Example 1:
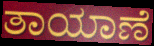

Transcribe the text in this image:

ತಾಯಾಣೆ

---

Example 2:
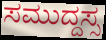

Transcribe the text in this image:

ಸಮುದ್ದಸ್ಸ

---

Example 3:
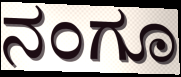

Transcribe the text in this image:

ನಂಗೂ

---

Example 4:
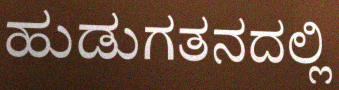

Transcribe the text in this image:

ಹುಡುಗತನದಲ್ಲಿ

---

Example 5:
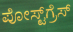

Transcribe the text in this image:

ಪೋಸ್ಟ್‌ಗ್ರೆಸ್